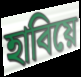
হাবিয়ে